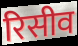
रिसीव